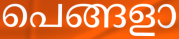
പെങ്ങളാ